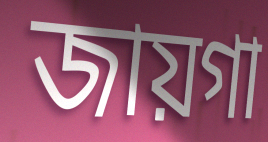
জায়গা